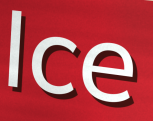
Ice